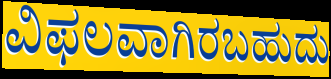
ವಿಫಲವಾಗಿರಬಹುದು